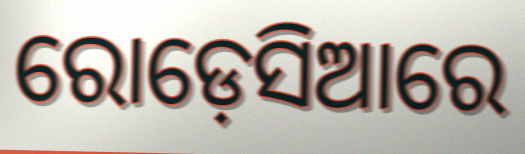
ରୋଡ଼େସିଆରେ